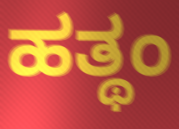
ಹತ್ಥಂ